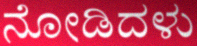
ನೋಡಿದಳು